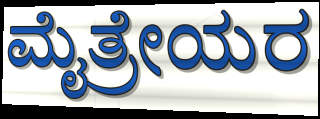
ಮೈತ್ರೇಯರ